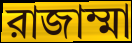
রাজাম্মা